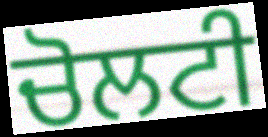
ਚੋਲਟੀ